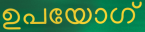
ഉപയോഗ്